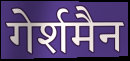
गेर्शमैन